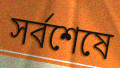
সর্বশেষে